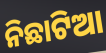
ନିଛାଟିଆ